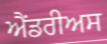
ਐਂਡਰੀਅਸ